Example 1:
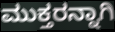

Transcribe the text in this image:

ಮುಕ್ತರನ್ನಾಗಿ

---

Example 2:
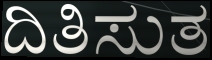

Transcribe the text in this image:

ದಿತಿಸುತ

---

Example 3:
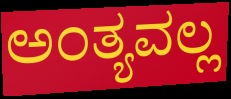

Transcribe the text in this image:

ಅಂತ್ಯವಲ್ಲ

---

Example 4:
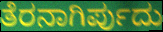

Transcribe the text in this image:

ತೆರನಾಗಿರ್ಪುದು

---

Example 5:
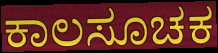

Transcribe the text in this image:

ಕಾಲಸೂಚಕ